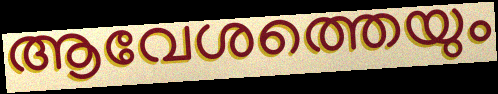
ആവേശത്തെയും